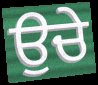
ਉਚੇ